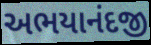
અભયાનંદજી